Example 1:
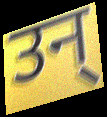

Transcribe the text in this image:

उन्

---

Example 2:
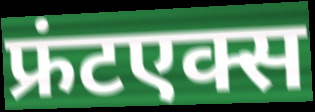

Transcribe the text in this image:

फ्रंटएक्स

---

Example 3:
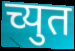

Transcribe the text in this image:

च्‍युत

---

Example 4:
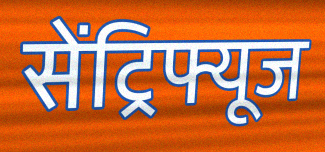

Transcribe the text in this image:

सेंट्रिफ्यूज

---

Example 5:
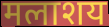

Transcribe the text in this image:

मलाशय